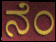
ನೆಂ